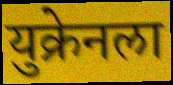
युक्रेनला